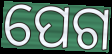
ପେଗ